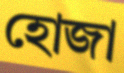
হোজা